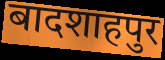
बादशाहपुर